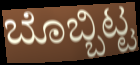
ಬೊಬ್ಬಿಟ್ಟ